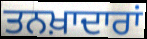
ਤਨਖ਼ਾਦਾਰਾਂ